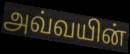
அவ்வயின்